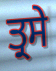
ਤ੍ਰਸੇ